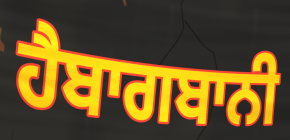
ਹੈਬਾਗਬਾਨੀ